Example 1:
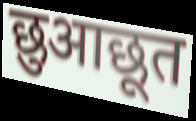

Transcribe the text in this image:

छुआछूत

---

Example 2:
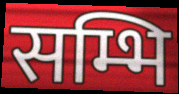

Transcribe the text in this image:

सम्भि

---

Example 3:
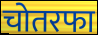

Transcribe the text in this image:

चोतरफा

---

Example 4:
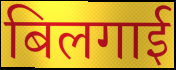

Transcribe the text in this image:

बिलगाई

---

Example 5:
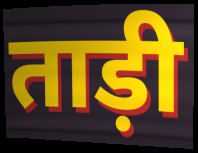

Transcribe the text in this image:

ताड़ी